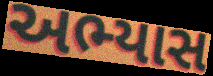
અભ્યાસ